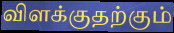
விளக்குதற்கும்